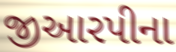
જીઆરપીના